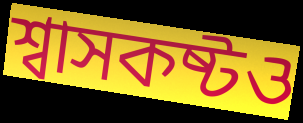
শ্বাসকষ্টও